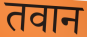
तवान